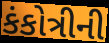
કંકોત્રીની